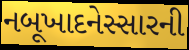
નબૂખાદનેસ્સારની